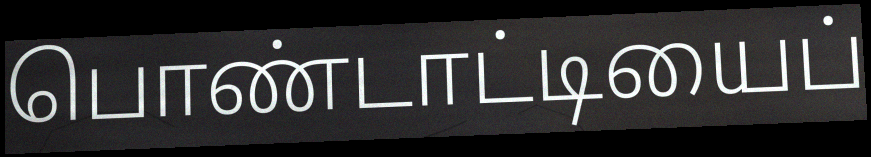
பொண்டாட்டியைப்